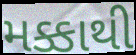
મક્કાથી